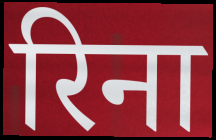
रिना